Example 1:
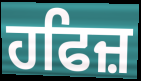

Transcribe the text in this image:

ਹਫਿਜ਼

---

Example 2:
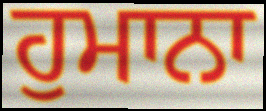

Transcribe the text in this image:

ਹੁਮਾਨਾ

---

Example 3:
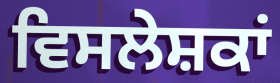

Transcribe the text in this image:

ਵਿਸਲੇਸ਼ਕਾਂ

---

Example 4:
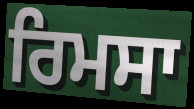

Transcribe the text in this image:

ਰਿਮਸਾ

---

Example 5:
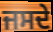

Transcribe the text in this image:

ਜਸਦੇ